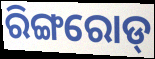
ରିଙ୍ଗରୋଡ୍